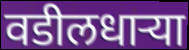
वडीलधार्‍या